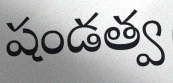
షండత్వ